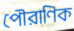
পৌরাণিক